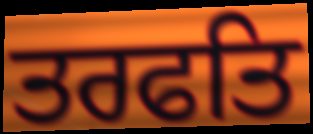
ਤਰਫਤਿ